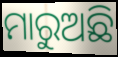
ମାରୁଅଛି